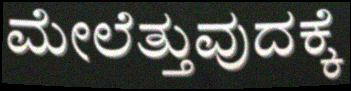
ಮೇಲೆತ್ತುವುದಕ್ಕೆ